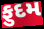
ફુદમ